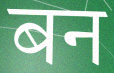
बन